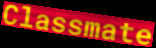
Classmate